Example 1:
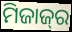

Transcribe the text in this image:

ମିଜାଜ୍‌ର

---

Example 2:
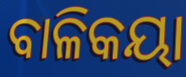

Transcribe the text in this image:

ବାଳିକୟା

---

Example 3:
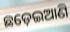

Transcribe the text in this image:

ଛଡ଼େଇଆଣି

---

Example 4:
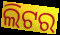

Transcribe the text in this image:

ଲିଟର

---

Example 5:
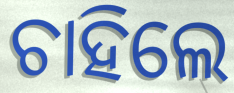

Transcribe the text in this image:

ଚାହିଲେ